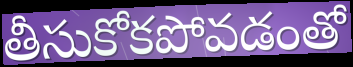
తీసుకోకపోవడంతో